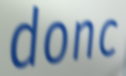
donc